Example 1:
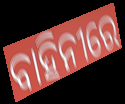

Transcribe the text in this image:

ବାହିନୀରେ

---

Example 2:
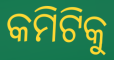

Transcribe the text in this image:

କମିଟିକୁ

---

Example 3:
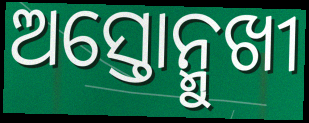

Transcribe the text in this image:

ଅସ୍ତୋନ୍ମୁଖୀ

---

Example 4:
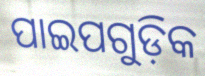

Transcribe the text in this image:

ପାଇପଗୁଡ଼ିକ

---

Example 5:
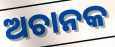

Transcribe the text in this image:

ଅଚାନକ